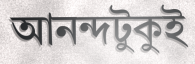
আনন্দটুকুই